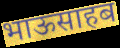
भाऊसाहब